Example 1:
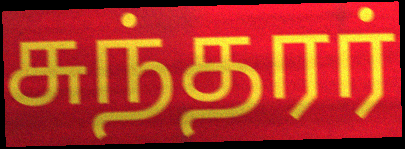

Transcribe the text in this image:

சுந்தரர்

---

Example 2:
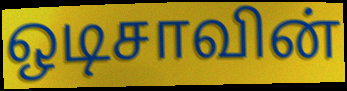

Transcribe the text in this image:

ஒடிசாவின்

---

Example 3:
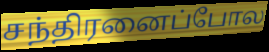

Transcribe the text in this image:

சந்திரனைப்போல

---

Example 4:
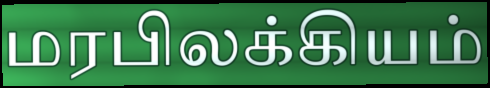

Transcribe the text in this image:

மரபிலக்கியம்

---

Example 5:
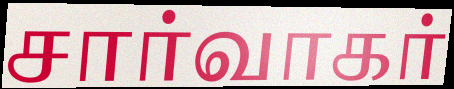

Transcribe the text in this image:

சார்வாகர்